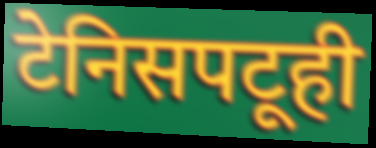
टेनिसपटूही